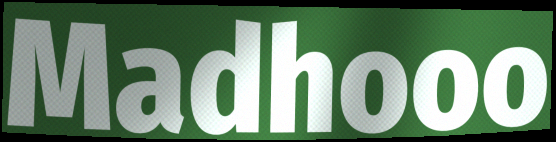
Madhooo